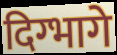
दिग्भागे